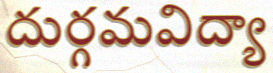
దుర్గమవిద్యా